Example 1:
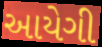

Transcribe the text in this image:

આયેગી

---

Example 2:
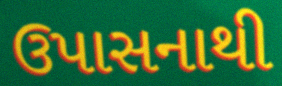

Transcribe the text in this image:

ઉપાસનાથી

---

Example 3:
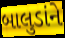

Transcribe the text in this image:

બાલુડાંને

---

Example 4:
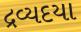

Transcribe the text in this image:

દ્રવ્યદયા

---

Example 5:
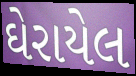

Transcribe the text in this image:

ઘેરાયેલ